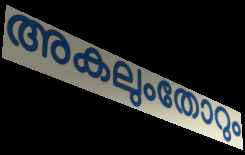
അകലുംതോറും